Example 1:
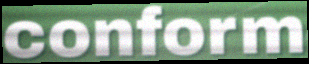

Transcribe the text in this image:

conform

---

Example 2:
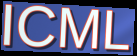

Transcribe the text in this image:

ICML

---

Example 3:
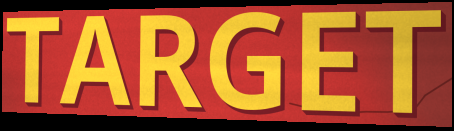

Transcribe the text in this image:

TARGET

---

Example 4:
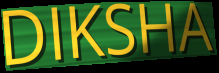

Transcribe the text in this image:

DIKSHA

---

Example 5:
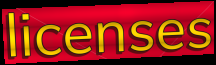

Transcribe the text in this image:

licenses